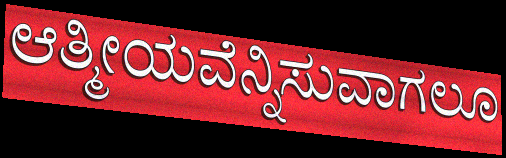
ಆತ್ಮೀಯವೆನ್ನಿಸುವಾಗಲೂ